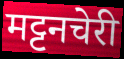
मट्टनचेरी